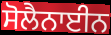
ਸੋਲੈਨਾਈਨ